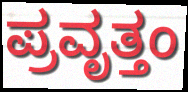
ಪ್ರವೃತ್ತಂ